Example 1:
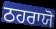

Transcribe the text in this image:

ਠਹਰਾਯੋ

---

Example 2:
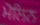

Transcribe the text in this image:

ਮੋਲਿਨ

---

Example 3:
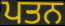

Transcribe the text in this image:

ਪਤਨ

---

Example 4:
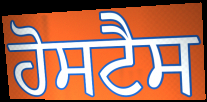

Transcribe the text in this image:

ਹੋਸਟੈਸ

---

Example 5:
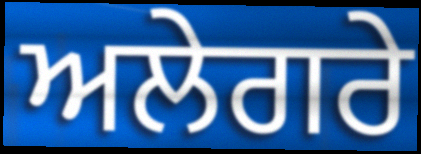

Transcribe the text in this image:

ਅਲੇਗਰੇ